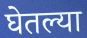
घेतल्या